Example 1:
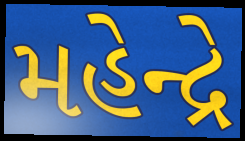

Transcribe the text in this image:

મહેન્દ્રે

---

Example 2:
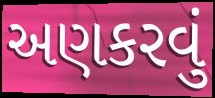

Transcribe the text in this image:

અણકરવું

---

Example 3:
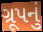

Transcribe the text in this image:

ગ્રૂપનું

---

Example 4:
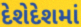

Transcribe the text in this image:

દેશેદેશમાં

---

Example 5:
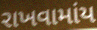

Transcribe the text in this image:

રાખવામાંય